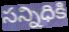
సన్నిధికి